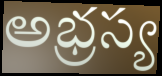
అభ్రస్య